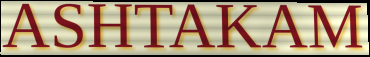
ASHTAKAM